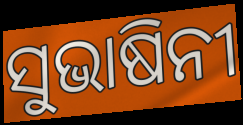
ସୁଭାଷିନୀ